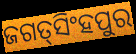
ଜଗତ୍‌ସିଂହପୁର